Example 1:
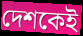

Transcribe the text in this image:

দেশকেই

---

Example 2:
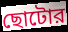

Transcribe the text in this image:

ছোটোর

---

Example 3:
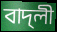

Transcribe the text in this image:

বাদ্‌লী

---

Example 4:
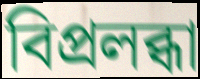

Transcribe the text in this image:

বিপ্রলব্ধা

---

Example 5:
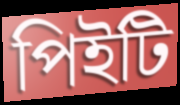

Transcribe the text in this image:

পিইটি